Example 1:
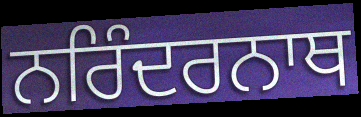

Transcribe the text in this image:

ਨਰਿੰਦਰਨਾਥ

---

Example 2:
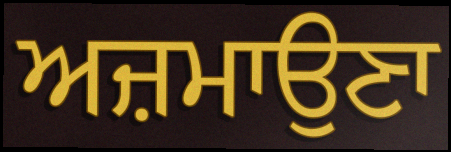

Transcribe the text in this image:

ਅਜ਼ਮਾਉਣਾ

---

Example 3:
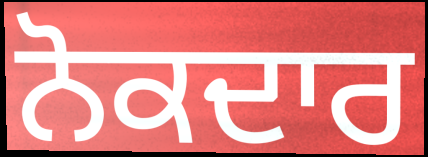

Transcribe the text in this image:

ਨੋਕਦਾਰ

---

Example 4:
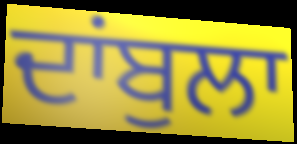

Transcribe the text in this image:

ਦਾਂਬੁਲਾ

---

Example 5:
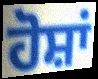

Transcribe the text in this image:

ਹੋਸ਼ਾਂ